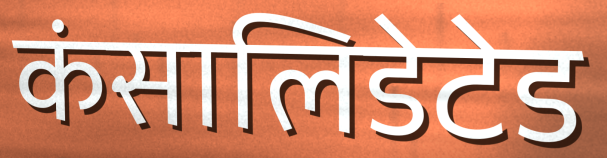
कंसालिडेटेड